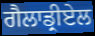
ਗੈਲਾਡ੍ਰੀਏਲ